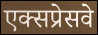
एक्सप्रेसवे